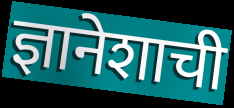
ज्ञानेशाची